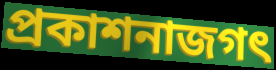
প্রকাশনাজগৎ